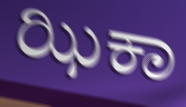
ಝಿಕಾ